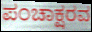
ಪಂಚಾಕ್ಷರವ